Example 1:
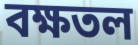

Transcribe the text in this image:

বক্ষতল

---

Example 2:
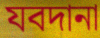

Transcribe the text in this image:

যবদানা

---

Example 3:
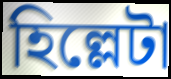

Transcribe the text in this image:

হিল্লেটা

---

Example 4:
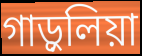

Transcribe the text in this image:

গাড়ুলিয়া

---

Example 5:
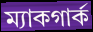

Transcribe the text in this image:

ম্যাকগার্ক